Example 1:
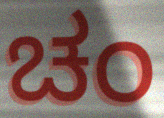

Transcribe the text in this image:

ಚಂ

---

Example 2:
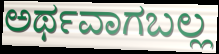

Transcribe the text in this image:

ಅರ್ಥವಾಗಬಲ್ಲ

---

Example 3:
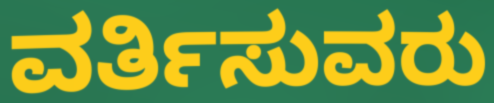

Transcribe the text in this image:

ವರ್ತಿಸುವರು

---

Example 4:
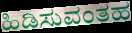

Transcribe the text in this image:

ಹಿಡಿಸುವಂತಹ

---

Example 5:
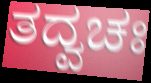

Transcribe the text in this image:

ತದ್ವಚಃ